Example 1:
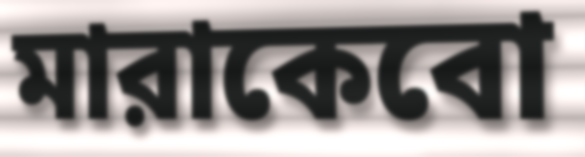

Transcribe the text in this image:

মারাকেবো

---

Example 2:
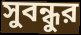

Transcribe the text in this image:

সুবন্ধুর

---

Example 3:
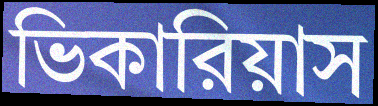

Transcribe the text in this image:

ভিকারিয়াস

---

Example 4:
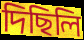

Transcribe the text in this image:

দিছিলি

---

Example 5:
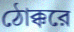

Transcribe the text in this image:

ঠোক্করে